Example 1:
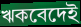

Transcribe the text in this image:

ঋকবেদেই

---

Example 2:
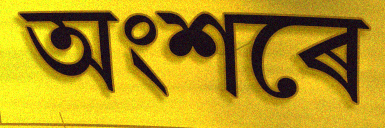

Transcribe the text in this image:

অংশৰে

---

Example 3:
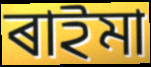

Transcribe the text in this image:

ৰাইমা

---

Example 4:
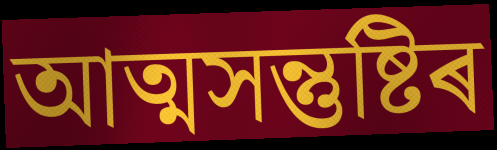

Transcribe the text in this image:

আত্মসন্তুষ্টিৰ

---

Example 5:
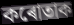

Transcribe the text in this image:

কৰোতাক